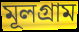
মূলগ্রাম